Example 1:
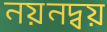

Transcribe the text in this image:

নয়নদ্বয়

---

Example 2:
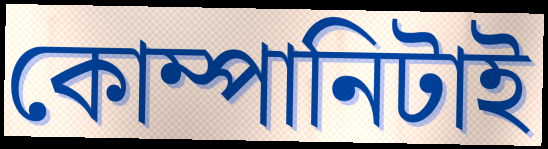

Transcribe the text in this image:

কোম্পানিটাই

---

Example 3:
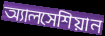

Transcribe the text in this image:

অ্যালসেশিয়ান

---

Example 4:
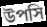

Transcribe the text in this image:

উপসি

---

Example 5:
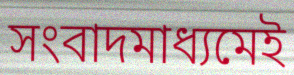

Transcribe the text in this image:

সংবাদমাধ্যমেই